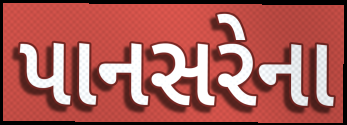
પાનસરેના